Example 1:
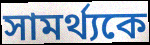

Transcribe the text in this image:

সামর্থ্যকে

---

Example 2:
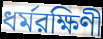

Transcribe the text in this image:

ধর্মরক্ষিণী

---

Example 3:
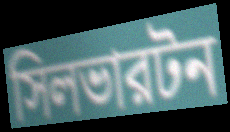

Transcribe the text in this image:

সিলভারটন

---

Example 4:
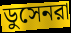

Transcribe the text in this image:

ডুসেনরা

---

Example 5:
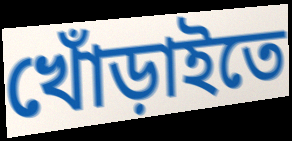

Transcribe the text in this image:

খোঁড়াইতে